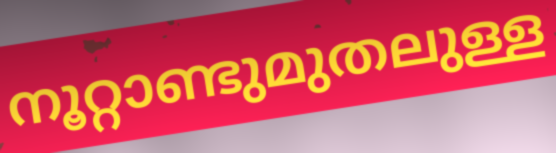
നൂറ്റാണ്ടുമുതലുള്ള